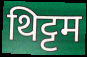
थिट्टम